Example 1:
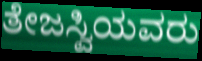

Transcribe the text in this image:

ತೇಜಸ್ವಿಯವರು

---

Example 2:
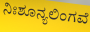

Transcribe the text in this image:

ನಿಃಶೂನ್ಯಲಿಂಗವೆ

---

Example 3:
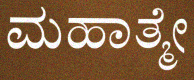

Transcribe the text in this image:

ಮಹಾತ್ಮೇ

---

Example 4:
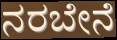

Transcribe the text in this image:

ನರಬೇನೆ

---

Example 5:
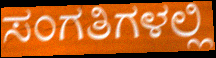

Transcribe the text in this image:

ಸಂಗತಿಗಳಲ್ಲಿ